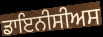
ਡਾਇਨੀਸੀਅਸ